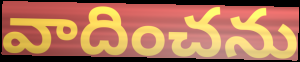
వాదించను